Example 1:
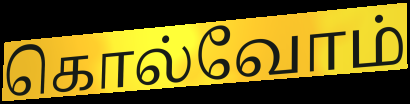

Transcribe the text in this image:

கொல்வோம்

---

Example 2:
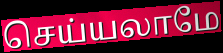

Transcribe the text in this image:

செய்யலாமே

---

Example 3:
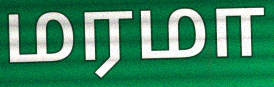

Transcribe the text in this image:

மரமா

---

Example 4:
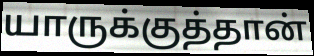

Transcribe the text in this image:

யாருக்குத்தான்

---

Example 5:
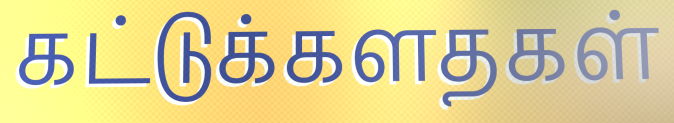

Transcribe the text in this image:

கட்டுக்களதகள்